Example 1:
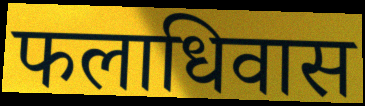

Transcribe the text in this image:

फलाधिवास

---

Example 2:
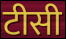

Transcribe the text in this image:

टीसी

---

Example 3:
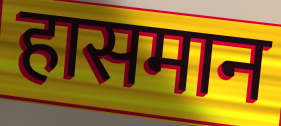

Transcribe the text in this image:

हासमान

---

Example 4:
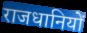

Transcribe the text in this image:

राजधानियों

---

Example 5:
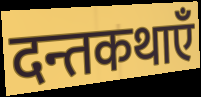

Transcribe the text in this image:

दन्तकथाएँ